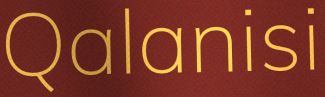
Qalanisi